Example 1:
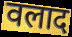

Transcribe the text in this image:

वलाद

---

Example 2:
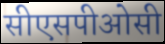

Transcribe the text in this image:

सीएसपीओसी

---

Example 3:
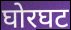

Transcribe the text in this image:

घोरघट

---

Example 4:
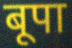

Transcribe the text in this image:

बूपा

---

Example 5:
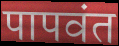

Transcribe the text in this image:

पापवंत